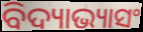
ବିଦ୍ୟାଭ୍ୟାସଂ